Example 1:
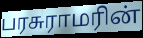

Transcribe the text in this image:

பரசுராமரின்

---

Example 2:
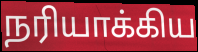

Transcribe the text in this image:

நரியாக்கிய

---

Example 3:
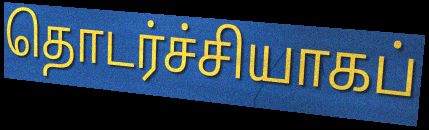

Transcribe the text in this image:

தொடர்ச்சியாகப்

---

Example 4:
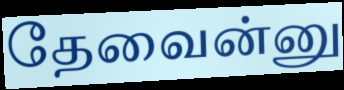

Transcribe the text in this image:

தேவைன்னு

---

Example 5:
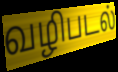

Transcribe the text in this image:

வழிபடல்